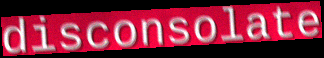
disconsolate